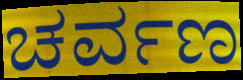
ಚರ್ವಣ